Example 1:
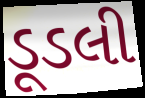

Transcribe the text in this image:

ડૂડલી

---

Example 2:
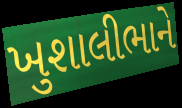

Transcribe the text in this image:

ખુશાલીભાને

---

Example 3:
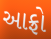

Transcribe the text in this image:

આફ્રો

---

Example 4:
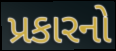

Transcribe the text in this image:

પ્રકારનો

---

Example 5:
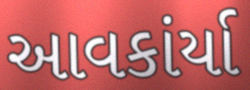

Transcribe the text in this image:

આવકાંર્યા